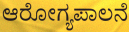
ಆರೋಗ್ಯಪಾಲನೆ